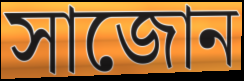
সাজোন